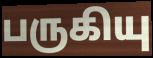
பருகியு